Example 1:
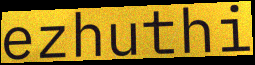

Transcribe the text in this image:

ezhuthi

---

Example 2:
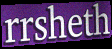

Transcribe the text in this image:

rrsheth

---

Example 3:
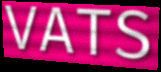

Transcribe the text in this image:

VATS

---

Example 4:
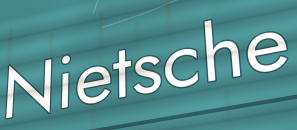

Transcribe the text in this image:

Nietsche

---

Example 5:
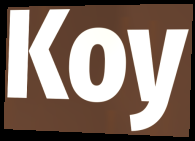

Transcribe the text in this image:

Koy